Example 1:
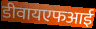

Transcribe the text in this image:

डीवायएफआई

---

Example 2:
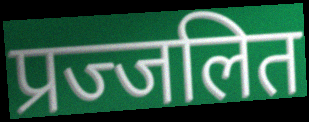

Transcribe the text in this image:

प्रज्जलित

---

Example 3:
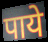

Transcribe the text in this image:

पाये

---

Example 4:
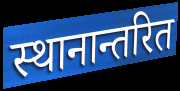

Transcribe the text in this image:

स्थानान्तरित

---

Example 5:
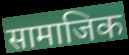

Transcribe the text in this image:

सामाजिक